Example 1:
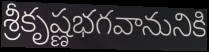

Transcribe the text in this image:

శ్రీకృష్ణభగవానునికి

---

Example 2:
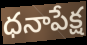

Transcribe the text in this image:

ధనాపేక్ష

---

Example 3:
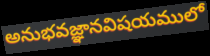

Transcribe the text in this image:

అనుభవజ్ఞానవిషయములో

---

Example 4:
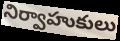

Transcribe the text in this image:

నిర్వాహుకులు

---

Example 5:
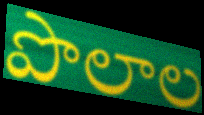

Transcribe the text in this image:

పొలాల